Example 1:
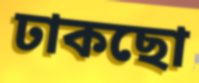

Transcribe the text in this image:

ঢাকছো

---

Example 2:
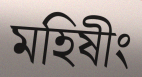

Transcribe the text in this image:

মহিষীং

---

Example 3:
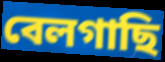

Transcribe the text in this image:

বেলগাছি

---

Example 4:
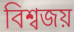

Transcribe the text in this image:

বিশ্বজয়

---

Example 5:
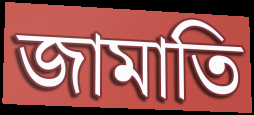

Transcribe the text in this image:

জামাতি